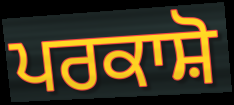
ਪਰਕਾਸ਼ੋ